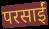
परसाईं